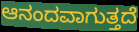
ಆನಂದವಾಗುತ್ತದೆ